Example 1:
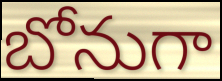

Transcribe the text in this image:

బోనుగా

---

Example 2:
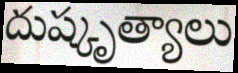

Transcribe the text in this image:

దుష్కృత్యాలు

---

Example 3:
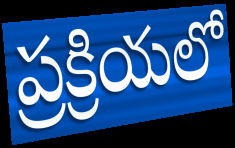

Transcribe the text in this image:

ప్రక్రియలో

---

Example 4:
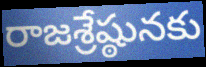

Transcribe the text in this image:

రాజశ్రేష్ఠునకు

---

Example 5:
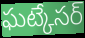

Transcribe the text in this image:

ఘట్కేసర్